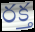
రక్త